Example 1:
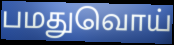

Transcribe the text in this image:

பமதுவொய்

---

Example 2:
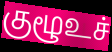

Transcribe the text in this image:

குழூஉச்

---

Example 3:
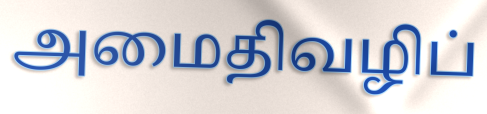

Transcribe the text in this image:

அமைதிவழிப்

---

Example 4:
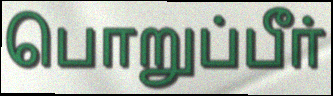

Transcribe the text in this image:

பொறுப்பீர்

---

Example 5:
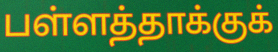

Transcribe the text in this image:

பள்ளத்தாக்குக்